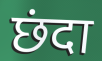
छंदा